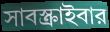
সাবস্ক্রাইবার